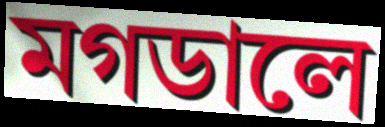
মগডালে